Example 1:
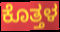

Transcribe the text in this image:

ಕೊತ್ತಳ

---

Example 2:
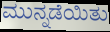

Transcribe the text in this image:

ಮುನ್ನಡೆಯಿತು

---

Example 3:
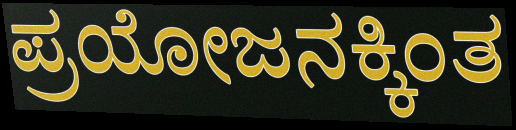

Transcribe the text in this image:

ಪ್ರಯೋಜನಕ್ಕಿಂತ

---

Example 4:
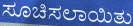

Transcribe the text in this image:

ಸೂಚಿಸಲಾಯಿತು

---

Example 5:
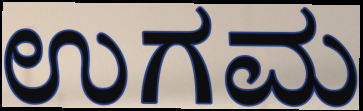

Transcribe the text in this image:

ಉಗಮ